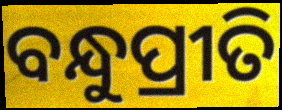
ବନ୍ଧୁପ୍ରୀତି